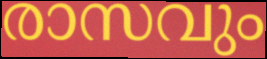
രാസവും